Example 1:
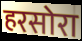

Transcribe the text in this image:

हरसोरा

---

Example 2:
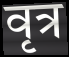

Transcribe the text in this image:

वृत्र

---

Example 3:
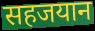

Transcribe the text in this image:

सहजयान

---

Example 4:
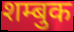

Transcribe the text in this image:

शम्बुक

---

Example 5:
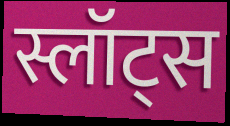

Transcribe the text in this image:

स्लॉट्स